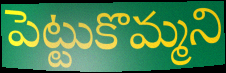
పెట్టుకొమ్మని